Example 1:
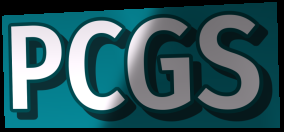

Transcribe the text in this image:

PCGS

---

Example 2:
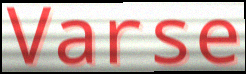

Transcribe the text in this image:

Varse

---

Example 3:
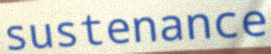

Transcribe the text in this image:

sustenance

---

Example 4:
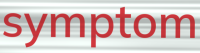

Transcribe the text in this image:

symptom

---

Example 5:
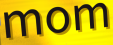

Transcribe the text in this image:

mom